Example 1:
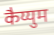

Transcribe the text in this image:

कैय्युम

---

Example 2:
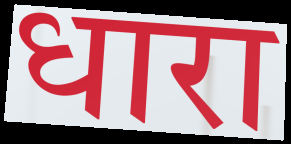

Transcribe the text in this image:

धारा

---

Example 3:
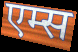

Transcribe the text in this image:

एम्स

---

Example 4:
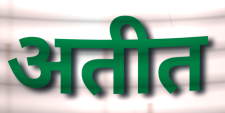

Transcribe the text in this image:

अतीत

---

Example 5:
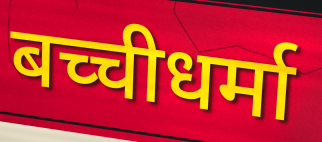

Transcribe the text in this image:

बच्चीधर्मा